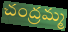
చంద్రమ్మ